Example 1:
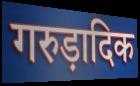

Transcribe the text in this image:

गरुड़ादिक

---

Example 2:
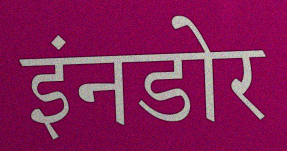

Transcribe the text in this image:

इंनडोर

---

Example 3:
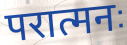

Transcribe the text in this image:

परात्मनः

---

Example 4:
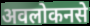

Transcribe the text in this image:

अवलोकनसे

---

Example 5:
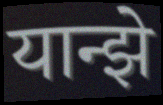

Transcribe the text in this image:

यान्झे